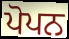
ਪੋਪਨ